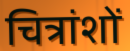
चित्रांशों